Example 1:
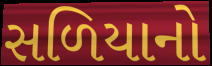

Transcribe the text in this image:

સળિયાનો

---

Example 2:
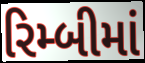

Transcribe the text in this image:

રિમ્બીમાં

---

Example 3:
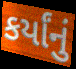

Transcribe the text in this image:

કર્યાંનું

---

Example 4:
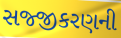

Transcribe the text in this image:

સજ્જીકરણની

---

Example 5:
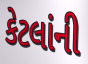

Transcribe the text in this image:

કેટલાંની